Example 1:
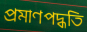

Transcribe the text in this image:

প্রমাণপদ্ধতি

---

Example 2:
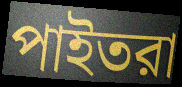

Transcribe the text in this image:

পাইতরা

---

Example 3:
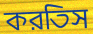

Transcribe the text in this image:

করতিস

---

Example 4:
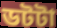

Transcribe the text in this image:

ডটটা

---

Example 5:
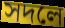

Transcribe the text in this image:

সদলে